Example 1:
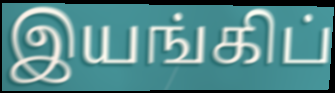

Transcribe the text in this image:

இயங்கிப்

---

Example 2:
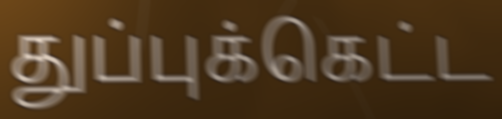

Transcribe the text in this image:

துப்புக்கெட்ட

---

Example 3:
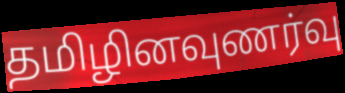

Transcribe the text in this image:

தமிழினவுணர்வு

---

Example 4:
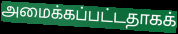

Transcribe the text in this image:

அமைக்கப்பட்டதாகக்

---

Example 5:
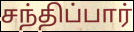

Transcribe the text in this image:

சந்திப்பார்